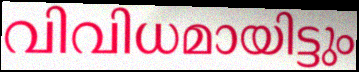
വിവിധമായിട്ടും